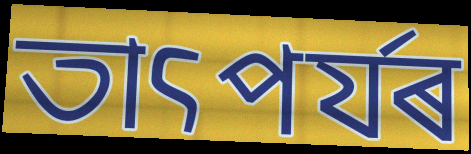
তাৎপৰ্যৰ